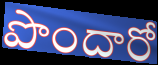
పొందారో